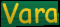
Vara